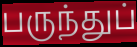
பருந்துப்